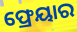
ଫ୍ରେୟାର